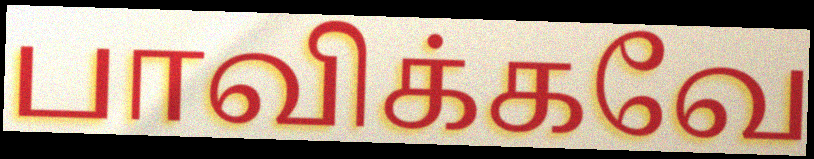
பாவிக்கவே